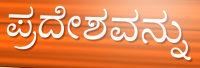
ಪ್ರದೇಶವನ್ನು